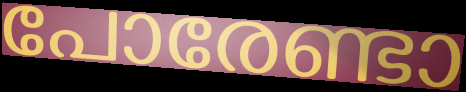
പോരേണ്ടാ